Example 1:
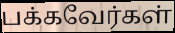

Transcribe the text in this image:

பக்கவேர்கள்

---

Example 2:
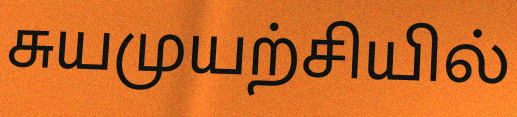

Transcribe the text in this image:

சுயமுயற்சியில்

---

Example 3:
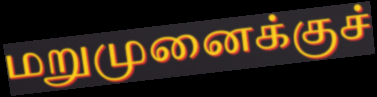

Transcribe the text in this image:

மறுமுனைக்குச்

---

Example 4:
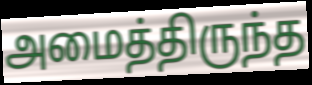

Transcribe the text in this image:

அமைத்திருந்த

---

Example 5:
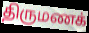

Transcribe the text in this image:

திருமணக்